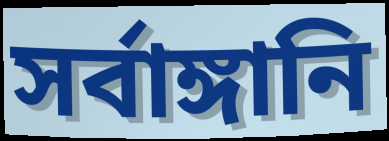
সর্বাঙ্গানি